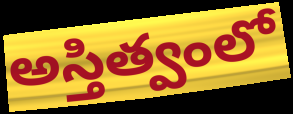
అస్తిత్వంలో